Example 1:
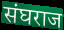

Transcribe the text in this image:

संघराज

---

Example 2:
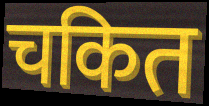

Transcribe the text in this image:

चकित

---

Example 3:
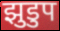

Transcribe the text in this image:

झुडुप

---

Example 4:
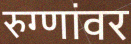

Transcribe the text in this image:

रुग्णांवर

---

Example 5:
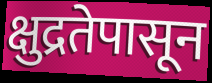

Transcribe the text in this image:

क्षुद्रतेपासून